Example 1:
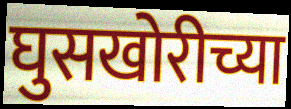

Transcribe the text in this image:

घुसखोरीच्या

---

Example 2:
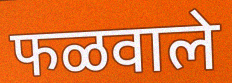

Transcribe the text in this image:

फळवाले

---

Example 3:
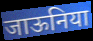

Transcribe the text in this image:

जाऊनिया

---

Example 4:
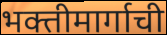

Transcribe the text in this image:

भक्तीमार्गाची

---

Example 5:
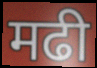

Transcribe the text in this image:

मढी